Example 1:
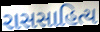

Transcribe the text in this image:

રાસસાહિત્ય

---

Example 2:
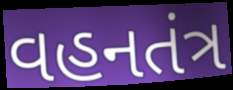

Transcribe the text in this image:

વહનતંત્ર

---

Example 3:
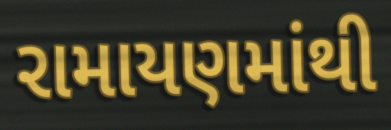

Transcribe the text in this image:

રામાયણમાંથી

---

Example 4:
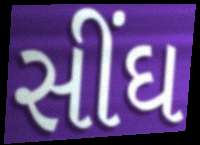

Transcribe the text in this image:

સીંઘ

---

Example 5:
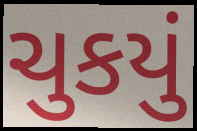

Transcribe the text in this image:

ચુકયું